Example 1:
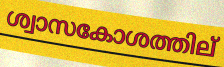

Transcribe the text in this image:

ശ്വാസകോശത്തില്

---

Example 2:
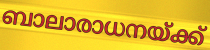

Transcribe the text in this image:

ബാലാരാധനയ്ക്ക്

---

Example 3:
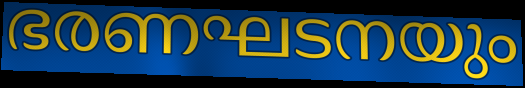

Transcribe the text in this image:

ഭരണഘടനയും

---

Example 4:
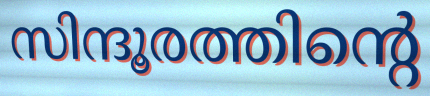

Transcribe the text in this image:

സിന്ദൂരത്തിന്റെ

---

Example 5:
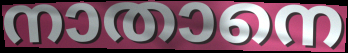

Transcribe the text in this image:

നാതാനെ